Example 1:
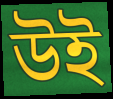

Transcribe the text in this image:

উই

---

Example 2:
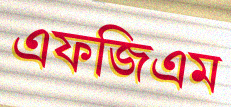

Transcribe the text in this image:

এফজিএম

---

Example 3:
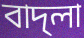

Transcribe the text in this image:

বাদ্‌লা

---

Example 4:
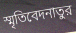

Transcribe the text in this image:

স্মৃতিবেদনাতুর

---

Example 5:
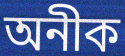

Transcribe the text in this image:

অনীক